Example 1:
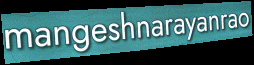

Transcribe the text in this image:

mangeshnarayanrao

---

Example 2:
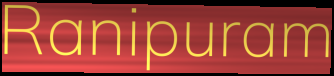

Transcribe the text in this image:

Ranipuram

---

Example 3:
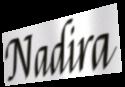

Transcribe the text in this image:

Nadira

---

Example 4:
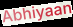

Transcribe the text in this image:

Abhiyaan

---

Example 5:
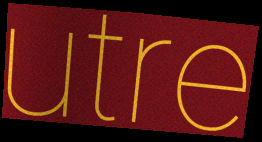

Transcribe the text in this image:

utre